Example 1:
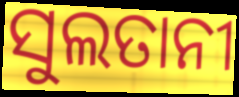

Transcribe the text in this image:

ସୁଲତାନୀ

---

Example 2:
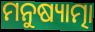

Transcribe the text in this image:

ମନୁଷ୍ୟାତ୍ମା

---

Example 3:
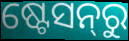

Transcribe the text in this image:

ଷ୍ଟେସନ୍‌ରୁ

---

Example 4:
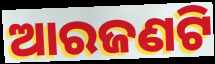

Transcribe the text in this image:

ଆରଜଣଟି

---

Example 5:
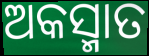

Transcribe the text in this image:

ଅକସ୍ମାତ